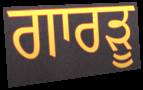
ਗਾਰੜੂ